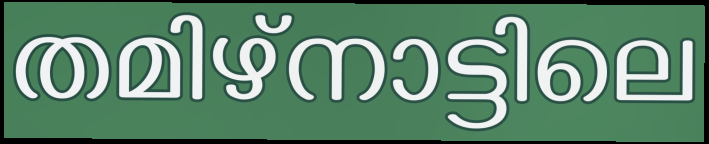
തമിഴ്നാട്ടിലെ